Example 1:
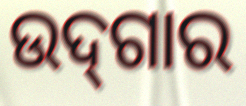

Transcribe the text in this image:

ଉଦ୍‌ଗାର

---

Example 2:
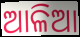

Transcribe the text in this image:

ଆଳିଆ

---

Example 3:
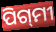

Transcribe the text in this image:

ପିଗ୍‌ମୀ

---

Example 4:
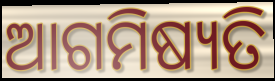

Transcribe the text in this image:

ଆଗମିଷ୍ୟତି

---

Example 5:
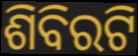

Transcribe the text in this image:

ଶିବିରଟି